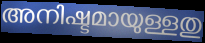
അനിഷ്ടമായുള്ളതു